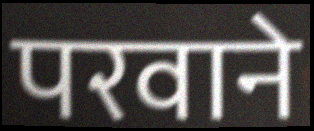
परवाने